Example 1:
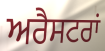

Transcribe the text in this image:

ਅਰੈਸਟਰਾਂ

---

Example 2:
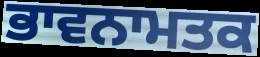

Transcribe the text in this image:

ਭਾਵਨਾਮਤਕ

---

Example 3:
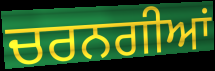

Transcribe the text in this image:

ਚਰਨਗੀਆਂ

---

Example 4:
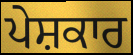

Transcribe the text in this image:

ਪੇਸ਼ਕਾਰ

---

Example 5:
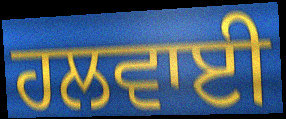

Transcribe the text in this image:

ਹਲਵਾਈ